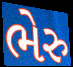
ભેરુ